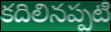
కదిలినప్పటి